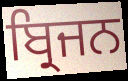
ਬ੍ਰਿਜਨ